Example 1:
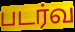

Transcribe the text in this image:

படர்வ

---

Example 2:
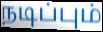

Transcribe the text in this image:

நடிப்பும்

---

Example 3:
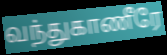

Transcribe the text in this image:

வந்துகாணீரே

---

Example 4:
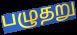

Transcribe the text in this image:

பழுதறு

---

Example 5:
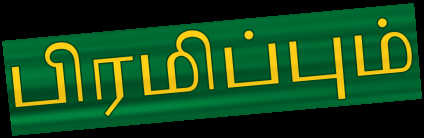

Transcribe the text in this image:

பிரமிப்பும்